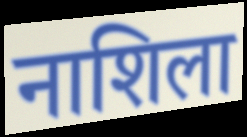
नाशिला